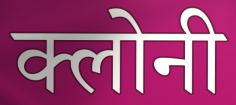
क्लोनी